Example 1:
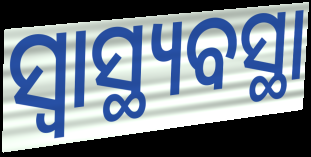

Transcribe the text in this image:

ସ୍ୱାସ୍ଥ୍ୟବସ୍ଥା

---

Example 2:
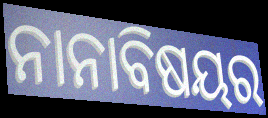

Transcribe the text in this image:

ନାନାବିଷୟର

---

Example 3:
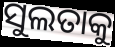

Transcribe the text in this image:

ସୁଲତାକୁ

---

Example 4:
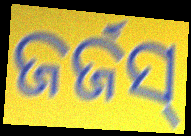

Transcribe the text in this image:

ଜର୍ଜସ୍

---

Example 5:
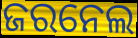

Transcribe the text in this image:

ଜରନେଲ